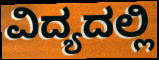
ವಿದ್ಯದಲ್ಲಿ